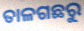
ତାଳଗଛରୁ